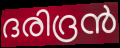
ദരിദ്രൻ